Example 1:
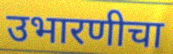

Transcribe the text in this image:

उभारणीचा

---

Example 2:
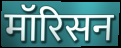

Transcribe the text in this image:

मॉरिसन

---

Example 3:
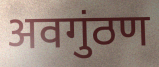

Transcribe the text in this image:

अवगुंठण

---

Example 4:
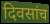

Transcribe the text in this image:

दिवसांच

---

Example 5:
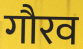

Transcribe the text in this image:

गौरव